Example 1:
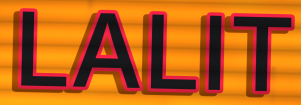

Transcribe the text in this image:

LALIT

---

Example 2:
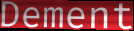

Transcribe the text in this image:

Dement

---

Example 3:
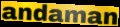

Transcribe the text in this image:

andaman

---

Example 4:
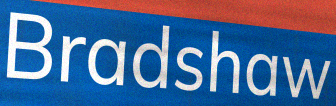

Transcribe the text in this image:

Bradshaw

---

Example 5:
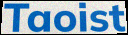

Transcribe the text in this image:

Taoist